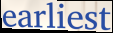
earliest